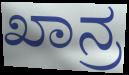
ಖಾನ್ರ